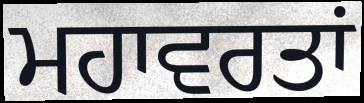
ਮਹਾਵਰਤਾਂ